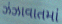
ઝંઝાવાતમાં